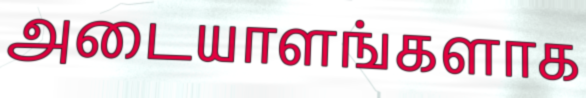
அடையாளங்களாக